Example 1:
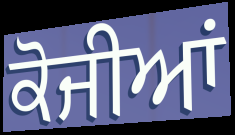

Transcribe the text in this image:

ਕੋਜੀਆਂ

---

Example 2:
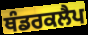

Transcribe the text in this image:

ਥੰਡਰਕਲੈਪ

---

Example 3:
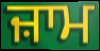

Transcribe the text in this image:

ਜ਼ਾਮ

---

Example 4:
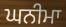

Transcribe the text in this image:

ਘਨੀਮਾ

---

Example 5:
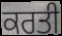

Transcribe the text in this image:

ਕਰਤੀ